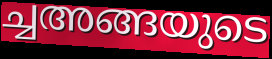
ച്ചഅങ്ങയുടെ